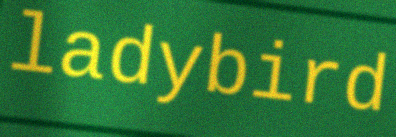
ladybird